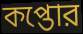
কপ্তোর